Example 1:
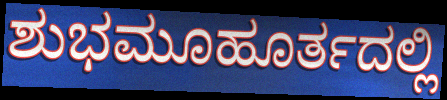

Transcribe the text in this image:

ಶುಭಮೂಹೂರ್ತದಲ್ಲಿ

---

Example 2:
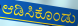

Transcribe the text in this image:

ಆಡಿಸಿಕೊಂಡು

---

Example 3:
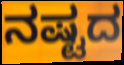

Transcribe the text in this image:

ನಷ್ಟದ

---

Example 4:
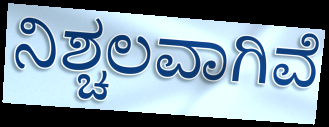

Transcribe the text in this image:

ನಿಶ್ಚಲವಾಗಿವೆ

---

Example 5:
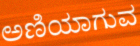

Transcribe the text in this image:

ಅಣಿಯಾಗುವ